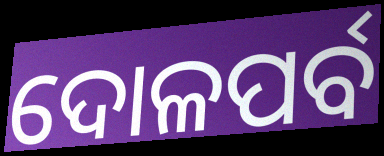
ଦୋଳପର୍ବ